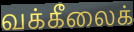
வக்கீலைக்